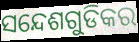
ସନ୍ଦେଶଗୁଡିକର